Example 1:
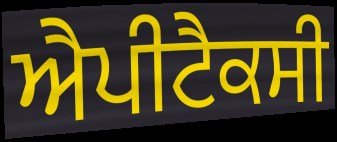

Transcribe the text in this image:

ਐਪੀਟੈਕਸੀ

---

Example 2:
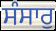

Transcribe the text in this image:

ਸੰਸਾਰੁ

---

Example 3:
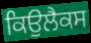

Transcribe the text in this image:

ਕਿਉਲੈਕਸ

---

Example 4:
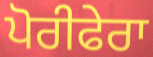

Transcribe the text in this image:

ਪੋਰੀਫੇਰਾ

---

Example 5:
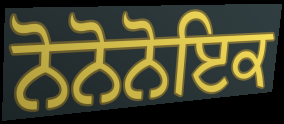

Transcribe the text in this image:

ਨੋਨੋਨੋਇਕ